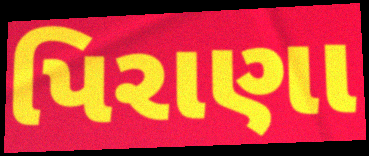
પિરાણા